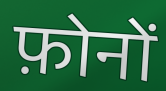
फ़ोनों